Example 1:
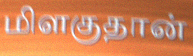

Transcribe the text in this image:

மிளகுதான்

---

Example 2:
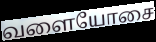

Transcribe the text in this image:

வளையோசை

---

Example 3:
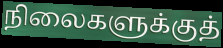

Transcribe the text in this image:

நிலைகளுக்குத்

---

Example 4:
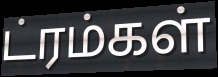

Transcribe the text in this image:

ட்ரம்கள்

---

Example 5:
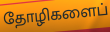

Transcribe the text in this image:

தோழிகளைப்